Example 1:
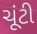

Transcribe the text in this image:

ચૂંટી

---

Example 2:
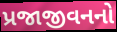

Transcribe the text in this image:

પ્રજાજીવનનો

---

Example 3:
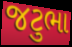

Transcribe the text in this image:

જટુભા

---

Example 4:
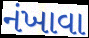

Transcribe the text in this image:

નંખાવા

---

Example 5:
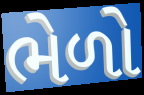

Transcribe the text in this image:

ભેળો